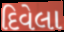
દિવેલા